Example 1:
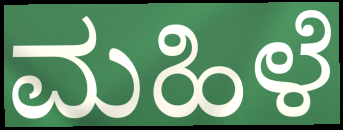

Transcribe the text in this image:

ಮಹಿಳೆ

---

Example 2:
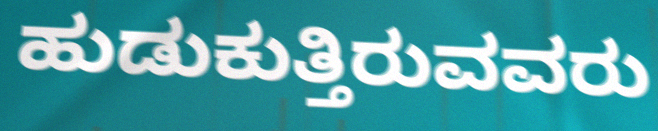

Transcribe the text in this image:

ಹುಡುಕುತ್ತಿರುವವರು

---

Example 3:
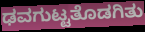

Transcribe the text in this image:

ಢವಗುಟ್ಟತೊಡಗಿತು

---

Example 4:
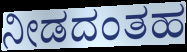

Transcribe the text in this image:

ನೀಡದಂತಹ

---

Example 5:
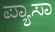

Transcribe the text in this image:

ಪ್ಯಾಸಾ